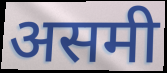
असमी